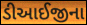
ડીઆઈજીના